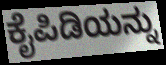
ಕೈಪಿಡಿಯನ್ನು